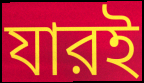
যারই